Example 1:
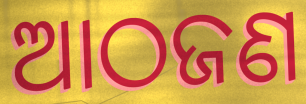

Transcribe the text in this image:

ଆଠଜଣ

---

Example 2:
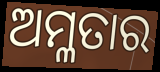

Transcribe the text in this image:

ଅମ୍ଳତାର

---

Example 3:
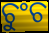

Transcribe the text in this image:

ଚୁଂଚ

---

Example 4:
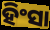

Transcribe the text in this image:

ହିଂସା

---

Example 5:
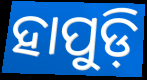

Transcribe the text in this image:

ହାପୁଡ଼ି